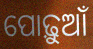
ପୋଢ଼ୁଆଁ